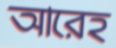
আরেহ